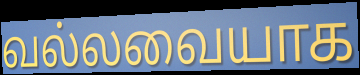
வல்லவையாக